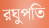
রঘুপতি